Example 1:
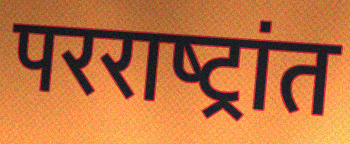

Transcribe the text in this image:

परराष्ट्रांत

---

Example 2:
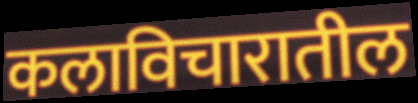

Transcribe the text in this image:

कलाविचारातील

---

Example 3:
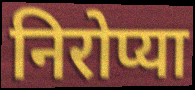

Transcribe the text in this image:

निरोप्या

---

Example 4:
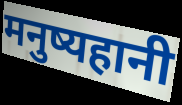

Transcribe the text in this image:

मनुष्यहानी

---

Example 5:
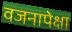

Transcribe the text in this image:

वजनापेक्षा